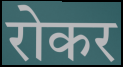
रोकर